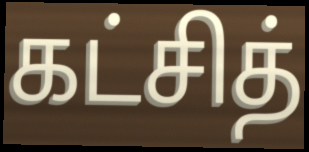
கட்சித்